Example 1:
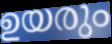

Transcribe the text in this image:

ഉയരും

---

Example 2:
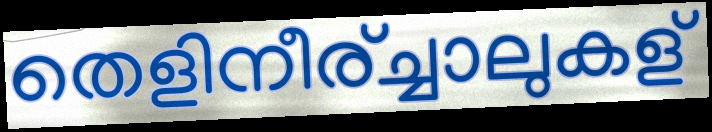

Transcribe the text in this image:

തെളിനീര്ച്ചാലുകള്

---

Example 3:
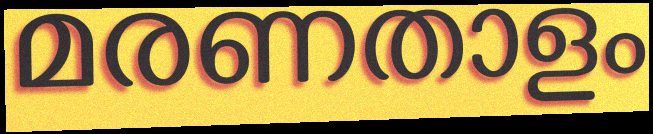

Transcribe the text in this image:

മരണതാളം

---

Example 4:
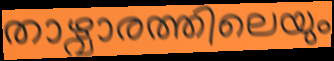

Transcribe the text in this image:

താഴ്വാരത്തിലെയും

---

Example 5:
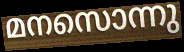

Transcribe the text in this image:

മനസൊന്നു